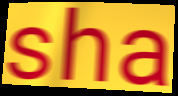
sha